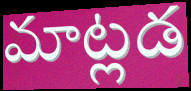
మాట్లడ